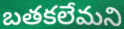
బతకలేమని